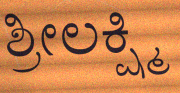
ಶ್ರೀಲಕ್ಷ್ಮಿ